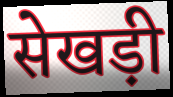
सेखड़ी